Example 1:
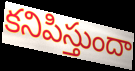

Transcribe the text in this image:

కనిపిస్తుందా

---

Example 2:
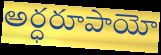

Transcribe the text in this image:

అర్ధరూపాయో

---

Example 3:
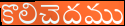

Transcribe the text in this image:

కొలిచెదము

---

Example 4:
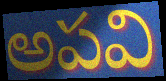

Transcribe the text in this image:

అపవి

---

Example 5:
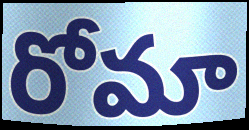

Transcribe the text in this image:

రోమా